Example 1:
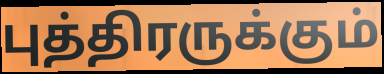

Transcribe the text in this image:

புத்திரருக்கும்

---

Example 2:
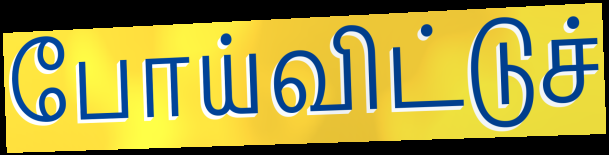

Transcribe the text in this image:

போய்விட்டுச்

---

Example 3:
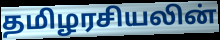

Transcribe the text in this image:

தமிழரசியலின்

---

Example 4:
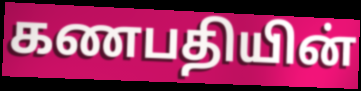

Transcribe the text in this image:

கணபதியின்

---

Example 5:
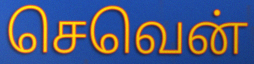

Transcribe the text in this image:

செவென்